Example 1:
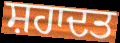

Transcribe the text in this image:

ਸ਼ਹਾਦਤ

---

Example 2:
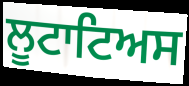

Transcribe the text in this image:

ਲੂਟਾਟਿਅਸ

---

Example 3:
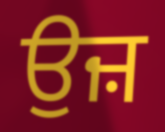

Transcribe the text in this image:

ਉਜ਼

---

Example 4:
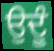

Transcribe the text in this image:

ਉਦੂੰ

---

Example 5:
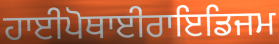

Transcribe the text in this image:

ਹਾਈਪੋਥਾਈਰਾਇਡਿਜਮ